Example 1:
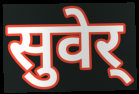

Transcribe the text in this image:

सुवेर्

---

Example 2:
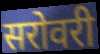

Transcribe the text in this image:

सरोवरी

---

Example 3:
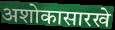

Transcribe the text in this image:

अशोकासारखे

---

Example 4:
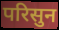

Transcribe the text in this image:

परिसुन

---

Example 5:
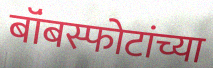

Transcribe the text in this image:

बॉंबस्फोटांच्या